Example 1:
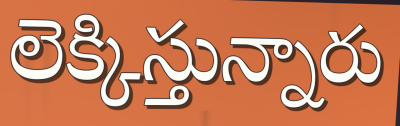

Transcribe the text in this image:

లెక్కిస్తున్నారు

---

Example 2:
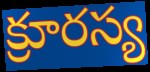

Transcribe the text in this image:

క్రూరస్య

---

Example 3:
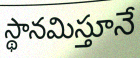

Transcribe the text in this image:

స్థానమిస్తూనే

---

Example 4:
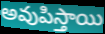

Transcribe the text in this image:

అవుపిస్తాయి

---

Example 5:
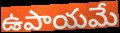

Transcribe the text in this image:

ఉపాయమే